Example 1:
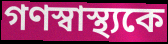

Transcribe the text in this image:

গণস্বাস্থ্যকে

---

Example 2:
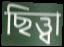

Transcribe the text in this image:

ছিত্ত্বা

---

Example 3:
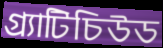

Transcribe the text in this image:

গ্র্যাটিচিউড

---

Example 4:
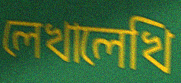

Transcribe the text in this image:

লেখালেখি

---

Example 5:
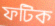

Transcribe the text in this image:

ফটিক